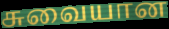
சுவையான